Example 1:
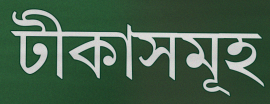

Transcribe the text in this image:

টীকাসমূহ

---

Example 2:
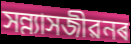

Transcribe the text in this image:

সন্ন্যাসজীৱনৰ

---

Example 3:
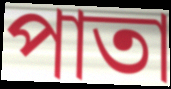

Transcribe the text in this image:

পাতা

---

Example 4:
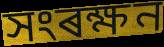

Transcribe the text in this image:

সংৰক্ষন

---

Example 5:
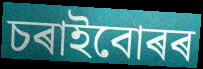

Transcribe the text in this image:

চৰাইবোৰৰ